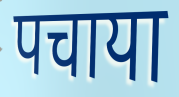
पचाया